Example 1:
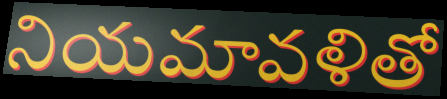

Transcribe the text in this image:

నియమావళితో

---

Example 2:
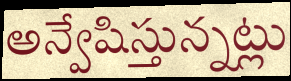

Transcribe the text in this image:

అన్వేషిస్తున్నట్లు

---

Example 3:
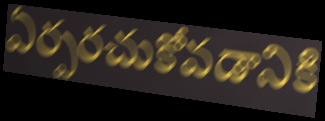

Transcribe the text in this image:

ఏర్పరచుకోవడానికి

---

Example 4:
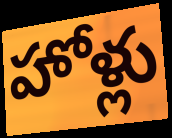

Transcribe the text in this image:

హోళ్లు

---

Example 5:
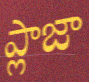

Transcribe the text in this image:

ప్లాజా